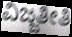
ವಿಜ್ಜತೀತಿ